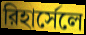
রিহার্সেলে